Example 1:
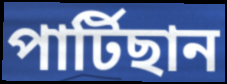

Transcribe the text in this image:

পাৰ্টিছান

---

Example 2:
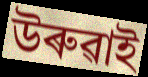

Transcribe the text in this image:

উৰুৱাই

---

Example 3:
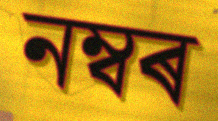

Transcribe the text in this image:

নম্বৰ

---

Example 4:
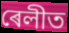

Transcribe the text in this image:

ৰেলীত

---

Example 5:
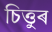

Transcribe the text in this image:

চিত্তুৰ